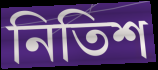
নিতিশ